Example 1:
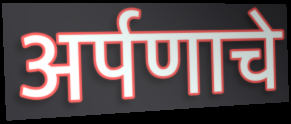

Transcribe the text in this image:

अर्पणाचे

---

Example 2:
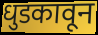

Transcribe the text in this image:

धुडकावून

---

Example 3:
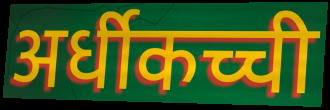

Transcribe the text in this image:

अर्धीकच्ची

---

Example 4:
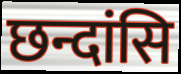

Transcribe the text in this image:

छन्दांसि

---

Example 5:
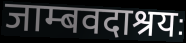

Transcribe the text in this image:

जाम्बवदाश्रयः